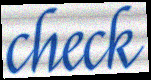
check